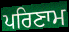
ਪਰਿਣਾਮ